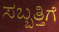
ಸಬ್ಬತ್ತಿಗೆ